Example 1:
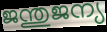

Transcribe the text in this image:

ജന്തുജന്യ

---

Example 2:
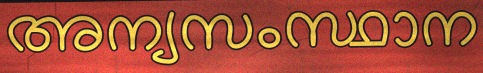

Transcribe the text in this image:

അന്യസംസ്ഥാന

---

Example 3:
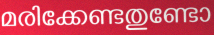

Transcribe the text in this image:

മരിക്കേണ്ടതുണ്ടോ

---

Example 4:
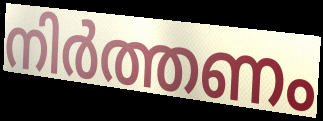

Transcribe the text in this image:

നിർത്തണം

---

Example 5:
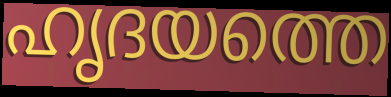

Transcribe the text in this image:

ഹൃദയത്തെ